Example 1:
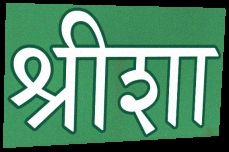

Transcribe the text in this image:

श्रीशा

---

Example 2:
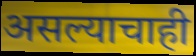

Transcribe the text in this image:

असल्याचाही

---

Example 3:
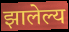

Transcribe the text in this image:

झालेल्य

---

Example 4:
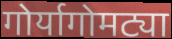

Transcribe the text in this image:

गोर्यागोमट्या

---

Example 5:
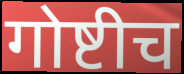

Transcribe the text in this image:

गोष्टीच